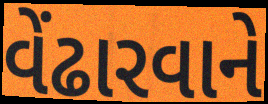
વેંઢારવાને